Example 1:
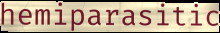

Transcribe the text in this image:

hemiparasitic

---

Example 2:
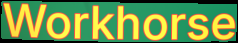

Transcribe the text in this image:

Workhorse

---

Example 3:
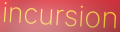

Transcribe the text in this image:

incursion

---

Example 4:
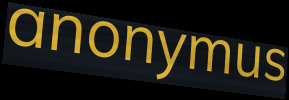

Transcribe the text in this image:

anonymus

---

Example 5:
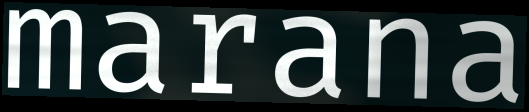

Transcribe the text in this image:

marana